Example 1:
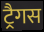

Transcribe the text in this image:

ट्रैगस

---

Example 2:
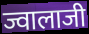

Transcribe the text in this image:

ज्वालाजी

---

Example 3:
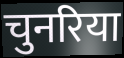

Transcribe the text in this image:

चुनरिया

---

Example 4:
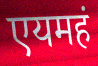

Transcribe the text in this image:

एयमहं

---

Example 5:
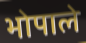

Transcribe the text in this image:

भोपाले